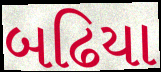
બઢિયા